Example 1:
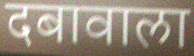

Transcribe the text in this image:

दबावाला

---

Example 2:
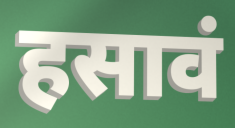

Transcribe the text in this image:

हसावं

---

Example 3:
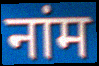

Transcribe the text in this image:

नांम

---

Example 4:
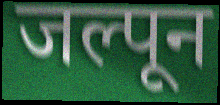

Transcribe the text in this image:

जल्पून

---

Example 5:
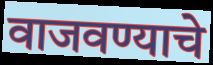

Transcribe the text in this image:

वाजवण्याचे